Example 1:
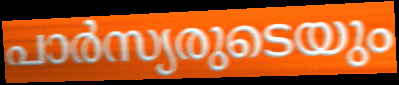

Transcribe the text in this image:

പാർസ്യരുടെയും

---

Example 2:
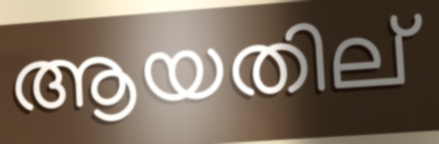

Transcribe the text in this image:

ആയതില്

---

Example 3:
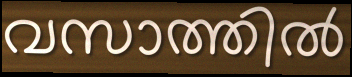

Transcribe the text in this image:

വസാത്തിൽ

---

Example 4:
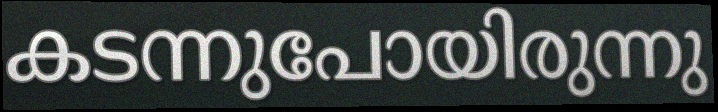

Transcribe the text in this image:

കടന്നുപോയിരുന്നു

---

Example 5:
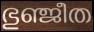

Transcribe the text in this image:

ഭുഞ്ജീത